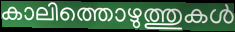
കാലിത്തൊഴുത്തുകൾ